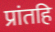
प्रांतहि